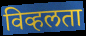
विव्हलता